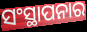
ସଂସ୍ଥାପନାର